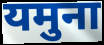
यमुना